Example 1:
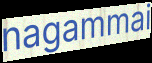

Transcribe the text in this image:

nagammai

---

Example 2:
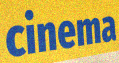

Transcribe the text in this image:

cinema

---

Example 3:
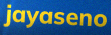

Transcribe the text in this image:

jayaseno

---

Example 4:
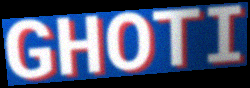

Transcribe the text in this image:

GHOTI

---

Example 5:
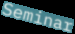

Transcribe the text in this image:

Seminar